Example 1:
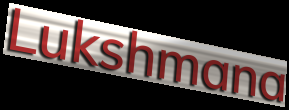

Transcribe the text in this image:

Lukshmana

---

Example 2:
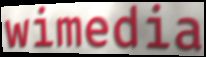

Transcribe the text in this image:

wimedia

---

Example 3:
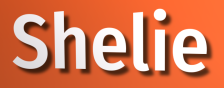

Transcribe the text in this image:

Shelie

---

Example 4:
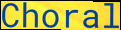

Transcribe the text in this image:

Choral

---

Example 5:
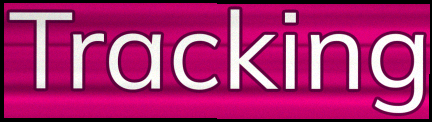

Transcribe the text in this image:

Tracking